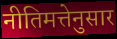
नीतिमत्तेनुसार